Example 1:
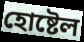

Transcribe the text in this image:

হোষ্টেল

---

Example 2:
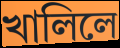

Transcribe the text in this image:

খালিলে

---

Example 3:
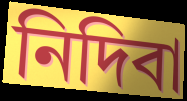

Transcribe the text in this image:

নিদিবা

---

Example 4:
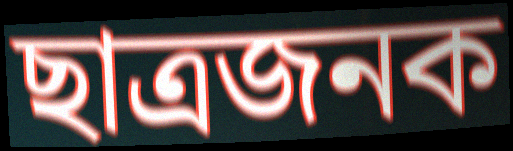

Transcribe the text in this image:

ছাত্ৰজনক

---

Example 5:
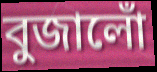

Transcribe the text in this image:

বুজালোঁ